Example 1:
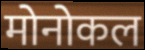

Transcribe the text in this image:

मोनोकल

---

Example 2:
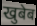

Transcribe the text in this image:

खुबेब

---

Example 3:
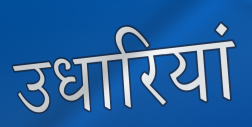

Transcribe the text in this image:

उधारियां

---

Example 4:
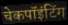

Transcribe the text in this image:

चेकपॉइंटिंग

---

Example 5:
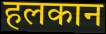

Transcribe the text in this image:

हलकान